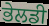
ਭੇਲਡੀ